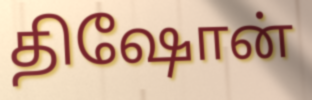
திஷோன்